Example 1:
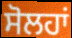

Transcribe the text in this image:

ਸੋਲਹਾਂ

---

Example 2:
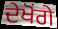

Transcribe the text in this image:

ਦੇਖੋਂਗੇ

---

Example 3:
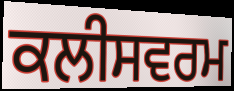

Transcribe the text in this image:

ਕਲੀਸਵਰਮ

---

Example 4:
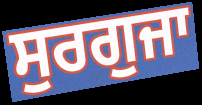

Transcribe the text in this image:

ਸੁਰਗੁਜਾ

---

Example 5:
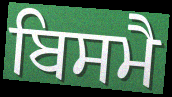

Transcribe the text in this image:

ਬਿਸਮੈ